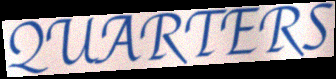
QUARTERS